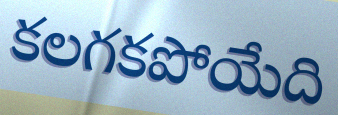
కలగకపోయేది